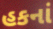
હકનાં